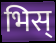
भिस्